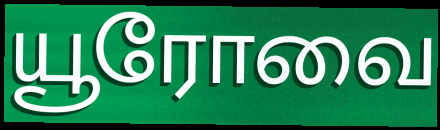
யூரோவை